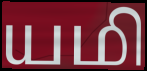
யமி